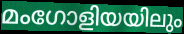
മംഗോളിയയിലും